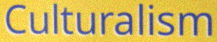
Culturalism